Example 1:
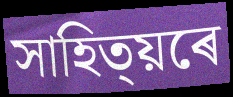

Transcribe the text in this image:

সাহিত্য়ৰে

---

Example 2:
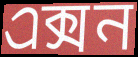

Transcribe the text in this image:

এক্সন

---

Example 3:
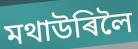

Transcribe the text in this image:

মথাউৰিলৈ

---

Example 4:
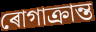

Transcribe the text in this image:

ৰোগাক্ৰান্ত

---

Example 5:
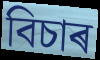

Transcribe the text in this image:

বিচাৰ